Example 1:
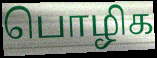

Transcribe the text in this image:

பொழிக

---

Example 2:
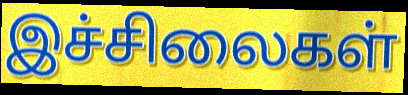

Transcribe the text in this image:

இச்சிலைகள்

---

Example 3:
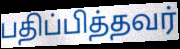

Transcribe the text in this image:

பதிப்பித்தவர்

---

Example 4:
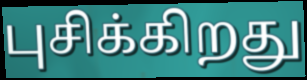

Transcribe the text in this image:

புசிக்கிறது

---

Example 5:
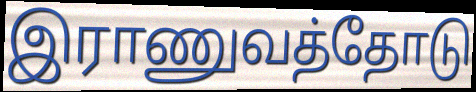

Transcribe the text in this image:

இராணுவத்தோடு